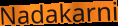
Nadakarni